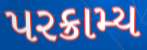
પરક્રામ્ય